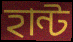
হান্ট